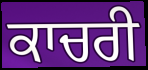
ਕਾਚਰੀ